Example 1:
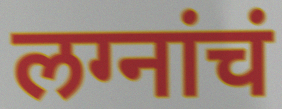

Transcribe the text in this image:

लग्नांचं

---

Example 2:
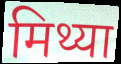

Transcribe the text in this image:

मिथ्या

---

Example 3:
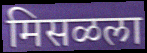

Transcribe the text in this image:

मिसळला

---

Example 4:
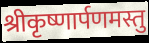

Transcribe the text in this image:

श्रीकृष्णार्पणमस्तु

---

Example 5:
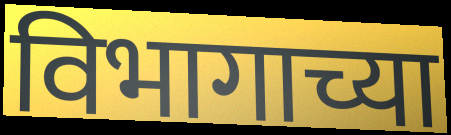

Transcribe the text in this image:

विभागाच्या